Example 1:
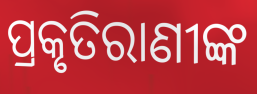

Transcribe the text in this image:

ପ୍ରକୃତିରାଣୀଙ୍କ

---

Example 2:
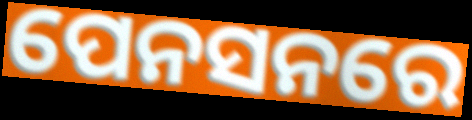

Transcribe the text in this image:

ପେନସନରେ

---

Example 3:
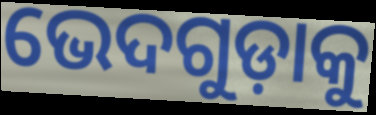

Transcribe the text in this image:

ଭେଦଗୁଡ଼ାକୁ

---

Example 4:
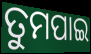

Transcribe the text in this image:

ତୁମପାଇ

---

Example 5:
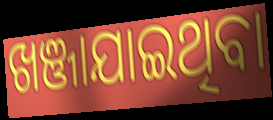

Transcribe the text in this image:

ଖଞ୍ଜାଯାଇଥିବା